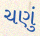
ચણું